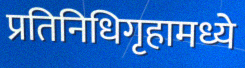
प्रतिनिधिगृहामध्ये